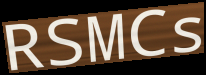
RSMCs